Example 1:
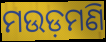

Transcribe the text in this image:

ମଉଡ଼ମଣି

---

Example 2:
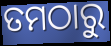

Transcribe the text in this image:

ତମଠାରୁ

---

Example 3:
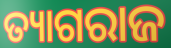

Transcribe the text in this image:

ତ୍ୟାଗରାଜ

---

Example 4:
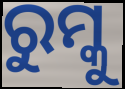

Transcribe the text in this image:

ରୁମ୍କୁ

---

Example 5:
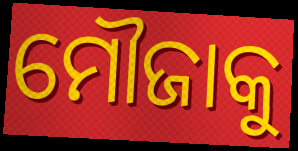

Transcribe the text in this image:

ମୌଜାକୁ